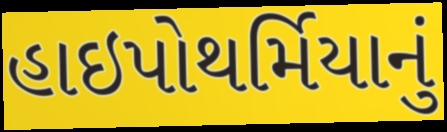
હાઇપોથર્મિયાનું